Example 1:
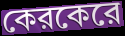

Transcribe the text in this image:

কেরকেরে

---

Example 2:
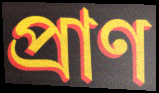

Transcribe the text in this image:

প্রাণ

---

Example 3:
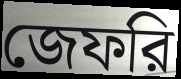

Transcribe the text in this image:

জেফরি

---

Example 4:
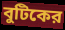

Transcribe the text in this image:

বুটিকের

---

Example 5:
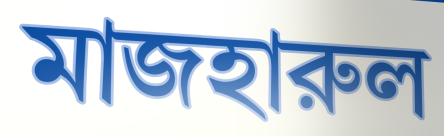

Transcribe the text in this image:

মাজহারুল